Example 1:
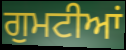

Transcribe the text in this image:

ਗੁਮਟੀਆਂ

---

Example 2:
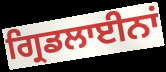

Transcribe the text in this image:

ਗ੍ਰਿਡਲਾਈਨਾਂ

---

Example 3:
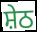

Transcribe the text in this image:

ਸ਼ੇਠ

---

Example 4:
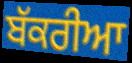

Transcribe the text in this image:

ਬੱਕਰੀਆ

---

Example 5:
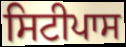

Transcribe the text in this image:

ਸਿਟੀਪਾਸ